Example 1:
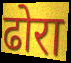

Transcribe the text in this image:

ढोरा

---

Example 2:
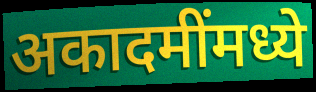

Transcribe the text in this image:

अकादमींमध्ये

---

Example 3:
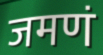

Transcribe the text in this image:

जमणं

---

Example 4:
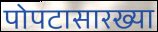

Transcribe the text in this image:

पोपटासारख्या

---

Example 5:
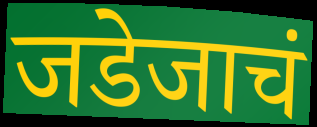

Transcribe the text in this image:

जडेजाचं